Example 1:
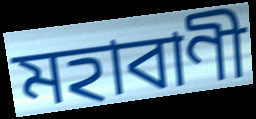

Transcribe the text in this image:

মহাবাণী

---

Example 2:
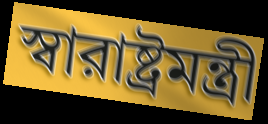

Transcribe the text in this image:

স্বারাষ্ট্রমন্ত্রী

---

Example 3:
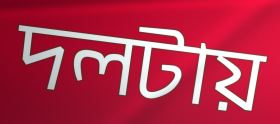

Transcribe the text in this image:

দলটায়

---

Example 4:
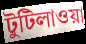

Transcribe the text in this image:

টুটিলাওয়া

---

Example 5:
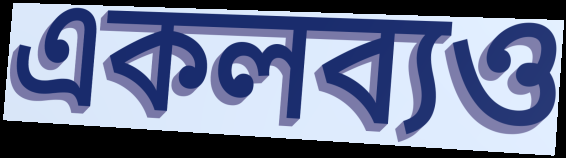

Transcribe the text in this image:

একলব্যও